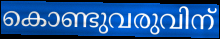
കൊണ്ടുവരുവിന്